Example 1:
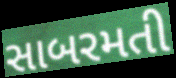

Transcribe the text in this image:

સાબરમતી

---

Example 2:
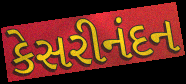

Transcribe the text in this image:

કેસરીનંદન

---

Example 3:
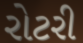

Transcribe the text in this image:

રોટરી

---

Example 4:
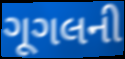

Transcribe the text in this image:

ગૂગલની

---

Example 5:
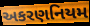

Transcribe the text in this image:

અકરણનિયમ